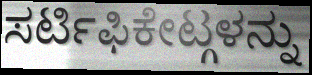
ಸರ್ಟಿಫಿಕೇಟ್ಗಳನ್ನು